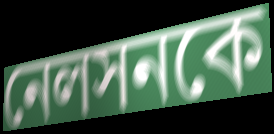
নেলসনকে